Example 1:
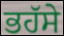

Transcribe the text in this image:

ਭਹੱਸੇ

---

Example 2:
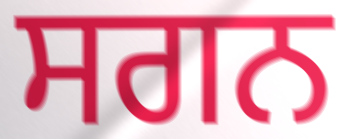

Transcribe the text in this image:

ਸਗਨ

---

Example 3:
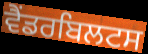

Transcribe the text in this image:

ਵੈਂਡਰਬਿਲਟਸ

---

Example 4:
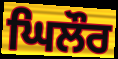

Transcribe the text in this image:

ਘਿਲੌਰ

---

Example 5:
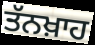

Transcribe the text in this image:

ਤੱਨਖ਼ਾਹ